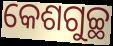
କେଶଗୁଚ୍ଛ